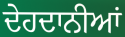
ਦੇਹਦਾਨੀਆਂ